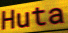
Huta